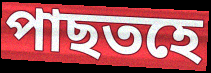
পাছতহে